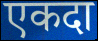
एकदा